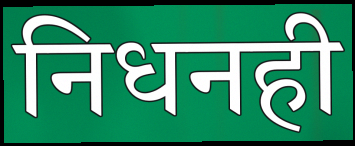
निधनही